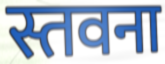
स्तवना